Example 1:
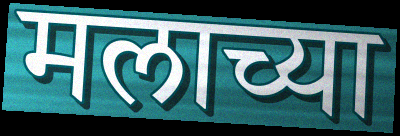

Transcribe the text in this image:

मलाच्या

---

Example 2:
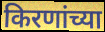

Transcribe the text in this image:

किरणांच्या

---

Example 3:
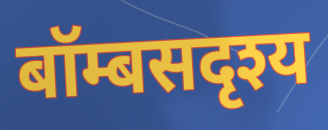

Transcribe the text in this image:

बॉम्बसदृश्य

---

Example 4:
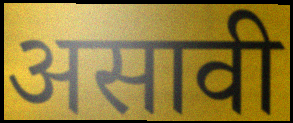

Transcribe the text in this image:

असावी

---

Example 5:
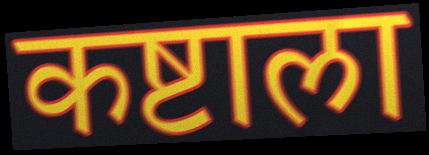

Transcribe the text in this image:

कष्टाला